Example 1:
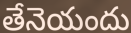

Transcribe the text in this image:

తేనెయందు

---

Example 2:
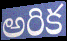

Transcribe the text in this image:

అరిక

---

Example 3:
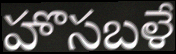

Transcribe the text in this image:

హొసబళే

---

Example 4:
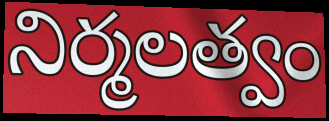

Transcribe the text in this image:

నిర్మలత్వం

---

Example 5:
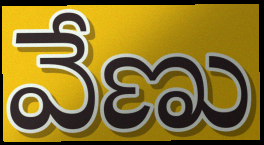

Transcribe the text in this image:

వేణు